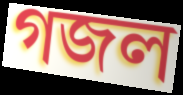
গজল